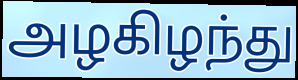
அழகிழந்து